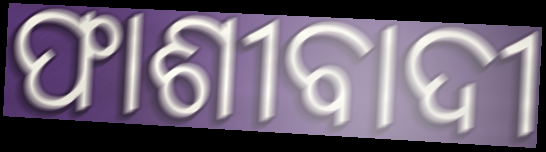
ଫାଶୀବାଦୀ